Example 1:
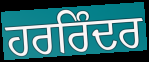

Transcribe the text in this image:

ਹਰਰਿੰਦਰ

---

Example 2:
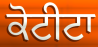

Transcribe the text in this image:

ਕੋਟੀਟਾ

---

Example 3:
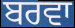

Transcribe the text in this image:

ਬਰਵਾ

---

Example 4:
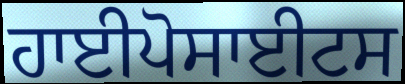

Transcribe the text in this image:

ਹਾਈਪੋਸਾਈਟਸ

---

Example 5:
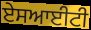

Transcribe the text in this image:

ਏਸਆਈਟੀ